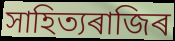
সাহিত্যৰাজিৰ